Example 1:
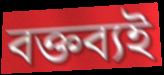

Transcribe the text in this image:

বক্তব্যই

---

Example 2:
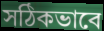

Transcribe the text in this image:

সঠিকভাবে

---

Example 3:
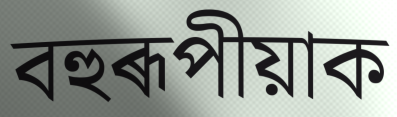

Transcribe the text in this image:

বহুৰূপীয়াক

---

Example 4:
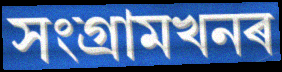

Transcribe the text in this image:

সংগ্ৰামখনৰ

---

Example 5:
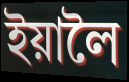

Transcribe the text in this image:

ইয়ালৈ